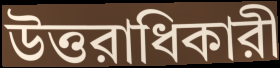
উত্তরাধিকারী